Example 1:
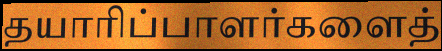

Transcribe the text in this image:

தயாரிப்பாளர்களைத்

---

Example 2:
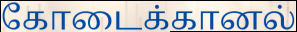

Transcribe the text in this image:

கோடைக்கானல்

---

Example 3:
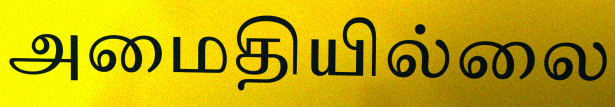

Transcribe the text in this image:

அமைதியில்லை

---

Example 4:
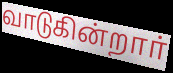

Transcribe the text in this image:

வாடுகின்றார்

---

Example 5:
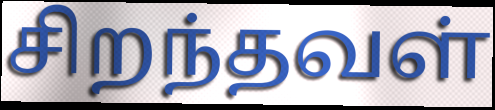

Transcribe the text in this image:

சிறந்தவள்